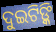
ଦୁଇଟିଙ୍କି